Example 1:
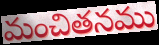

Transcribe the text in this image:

మంచితనము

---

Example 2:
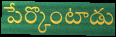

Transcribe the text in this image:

పేర్కొంటాడు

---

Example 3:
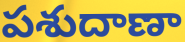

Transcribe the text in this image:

పశుదాణా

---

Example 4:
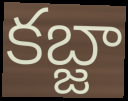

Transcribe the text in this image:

కబ్జా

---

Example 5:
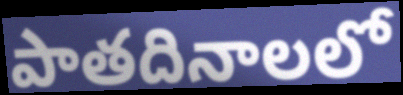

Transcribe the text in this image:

పాతదినాలలో